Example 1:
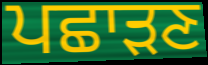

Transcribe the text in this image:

ਪਛਾੜਣ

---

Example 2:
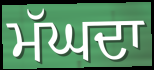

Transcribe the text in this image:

ਮੱਘਦਾ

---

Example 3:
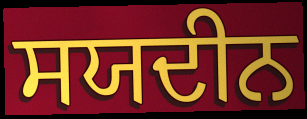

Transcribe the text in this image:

ਸਯਦੀਨ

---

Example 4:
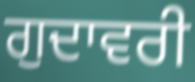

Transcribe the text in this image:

ਗੁਦਾਵਰੀ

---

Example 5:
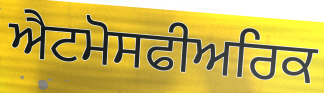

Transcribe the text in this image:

ਐਟਮੋਸਫੀਅਰਿਕ